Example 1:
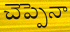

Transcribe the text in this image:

చెప్పెనా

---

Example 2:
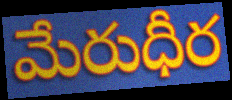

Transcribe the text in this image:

మేరుధీర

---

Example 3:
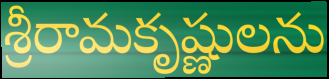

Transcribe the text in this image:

శ్రీరామకృష్ణులను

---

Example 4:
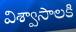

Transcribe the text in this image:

విశ్వాసాలకి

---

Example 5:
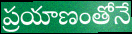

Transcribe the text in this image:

ప్రయాణంతోనే